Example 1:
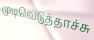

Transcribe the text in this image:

முடிவெடுத்தாச்சு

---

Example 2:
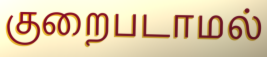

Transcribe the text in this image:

குறைபடாமல்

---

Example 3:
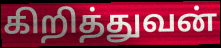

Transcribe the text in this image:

கிறித்துவன்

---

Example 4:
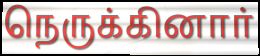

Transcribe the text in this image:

நெருக்கினார்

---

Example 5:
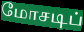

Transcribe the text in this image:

மோசடிப்